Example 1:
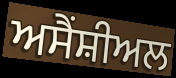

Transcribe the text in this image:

ਅਸੈਂਸ਼ੀਅਲ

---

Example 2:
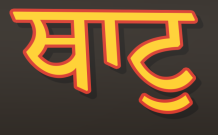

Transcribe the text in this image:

ਥਾਟੁ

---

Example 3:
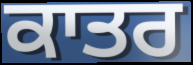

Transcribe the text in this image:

ਕਾਤਰ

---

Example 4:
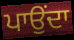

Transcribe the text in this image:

ਪਾਉਂਦਾ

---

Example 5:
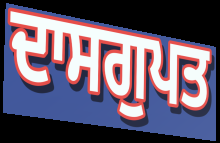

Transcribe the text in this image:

ਦਾਸਗੁਪਤ